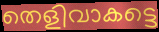
തെളിവാകട്ടെ